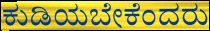
ಕುಡಿಯಬೇಕೆಂದರು